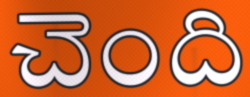
చెంది